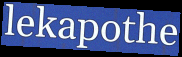
lekapothe